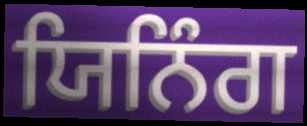
ਯਿਨਿੰਗ